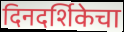
दिनदर्शिकेचा